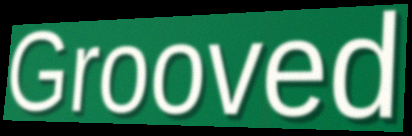
Grooved